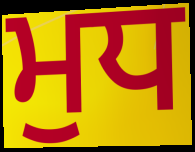
ਮੁਧ